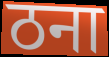
ठना